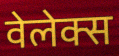
वेलेक्स